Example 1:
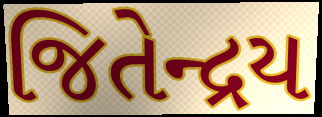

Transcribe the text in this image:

જિતેન્દ્રય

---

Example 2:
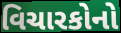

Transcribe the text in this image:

વિચારકોનો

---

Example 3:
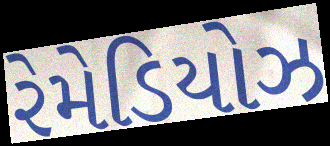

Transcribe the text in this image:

રેમેડિયોઝ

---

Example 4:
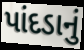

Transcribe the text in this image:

પાંદડાનું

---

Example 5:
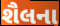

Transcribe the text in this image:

શૈલના